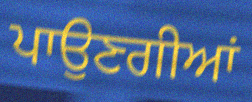
ਪਾਉਣਗੀਆਂ